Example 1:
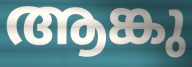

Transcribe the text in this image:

ആങ്കു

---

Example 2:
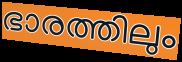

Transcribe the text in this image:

ഭാരത്തിലും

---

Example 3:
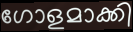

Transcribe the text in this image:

ഗോളമാക്കി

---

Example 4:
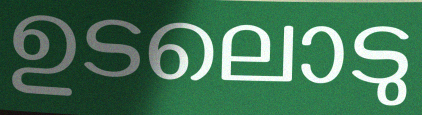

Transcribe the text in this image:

ഉടലൊടു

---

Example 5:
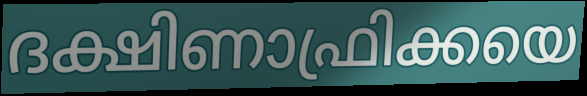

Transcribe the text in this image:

ദക്ഷിണാഫ്രിക്കയെ